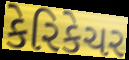
કેરિકેચર